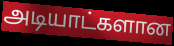
அடியாட்களான